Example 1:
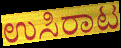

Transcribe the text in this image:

ಉಸಿರಾಟ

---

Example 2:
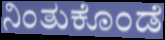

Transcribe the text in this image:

ನಿಂತುಕೊಂಡೆ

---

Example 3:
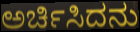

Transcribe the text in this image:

ಅರ್ಚಿಸಿದನು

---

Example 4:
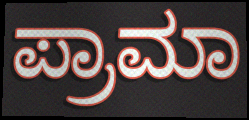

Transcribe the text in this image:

ಪ್ರಾಮಾ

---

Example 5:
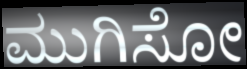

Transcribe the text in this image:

ಮುಗಿಸೋ